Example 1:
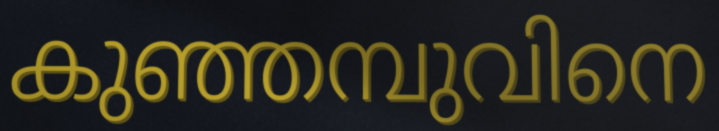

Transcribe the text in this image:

കുഞ്ഞമ്പുവിനെ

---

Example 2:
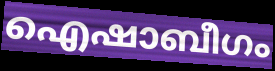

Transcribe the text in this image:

ഐഷാബീഗം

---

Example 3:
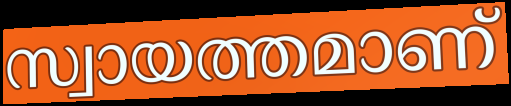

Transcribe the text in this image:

സ്വായത്തമാണ്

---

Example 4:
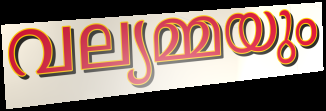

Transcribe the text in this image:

വല്യമ്മയും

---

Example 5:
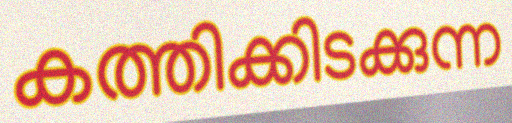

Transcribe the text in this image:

കത്തിക്കിടക്കുന്ന